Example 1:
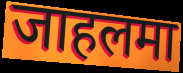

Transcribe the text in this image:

जाहलमा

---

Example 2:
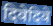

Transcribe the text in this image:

दिवेदिवे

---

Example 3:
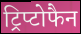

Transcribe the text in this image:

ट्रिप्टोफैन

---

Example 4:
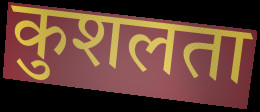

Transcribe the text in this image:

कुशलता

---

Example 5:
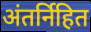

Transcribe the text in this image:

अंतर्निहित